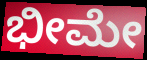
ಭೀಮೇ